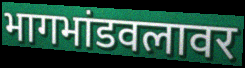
भागभांडवलावर